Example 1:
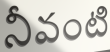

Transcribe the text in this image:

నీవంటి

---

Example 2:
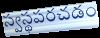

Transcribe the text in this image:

స్వస్థపరచడం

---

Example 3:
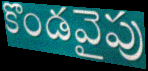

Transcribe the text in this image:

కొండవైపు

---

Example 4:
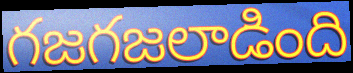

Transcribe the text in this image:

గజగజలాడింది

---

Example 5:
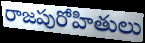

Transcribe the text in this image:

రాజపురోహితులు